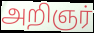
அறிஞர்